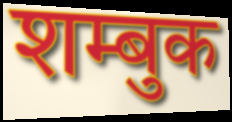
शम्बुक